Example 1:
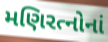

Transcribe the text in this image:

મણિરત્નોનાં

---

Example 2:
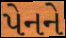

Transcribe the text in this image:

પેનને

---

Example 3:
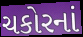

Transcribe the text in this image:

ચકોરનાં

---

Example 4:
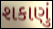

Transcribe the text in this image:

શકાણું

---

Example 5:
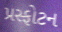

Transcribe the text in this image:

પ્રસ્ફોટન